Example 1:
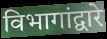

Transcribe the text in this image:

विभागांद्वारे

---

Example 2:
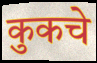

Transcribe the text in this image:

कुकचे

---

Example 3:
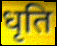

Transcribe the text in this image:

धृति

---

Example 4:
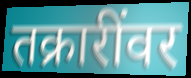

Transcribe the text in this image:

तक्रारींवर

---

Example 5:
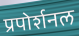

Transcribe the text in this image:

प्रपोर्शनल